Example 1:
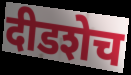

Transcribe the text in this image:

दीडशेच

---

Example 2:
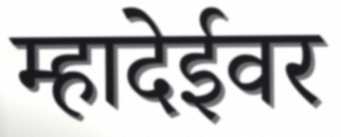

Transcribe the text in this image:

म्हादेईवर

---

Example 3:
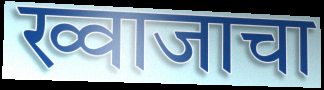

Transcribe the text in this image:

ख्वाजाचा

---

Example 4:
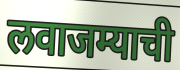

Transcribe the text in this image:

लवाजम्याची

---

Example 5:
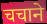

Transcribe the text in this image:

चचाने